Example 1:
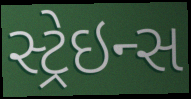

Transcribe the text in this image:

સ્ટ્રેઇન્સ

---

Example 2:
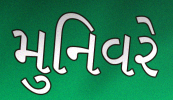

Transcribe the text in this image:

મુનિવરે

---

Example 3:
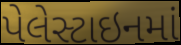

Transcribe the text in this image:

પેલેસ્ટાઇનમાં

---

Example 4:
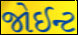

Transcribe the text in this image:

જોઈન્ટ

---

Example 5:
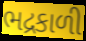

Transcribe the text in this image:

ભદ્રકાળી